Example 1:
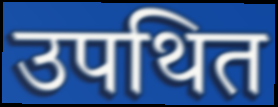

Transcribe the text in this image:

उपथित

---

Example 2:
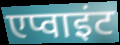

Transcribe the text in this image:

एप्वाइंट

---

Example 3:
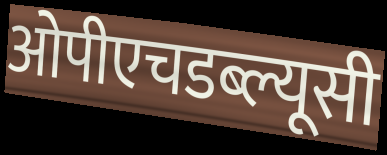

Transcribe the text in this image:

ओपीएचडब्ल्यूसी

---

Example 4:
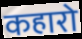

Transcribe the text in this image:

कहारो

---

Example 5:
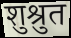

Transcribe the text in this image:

शुश्रुत